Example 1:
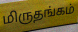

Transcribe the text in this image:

மிருதங்கம்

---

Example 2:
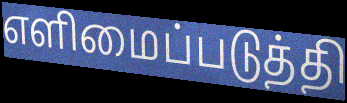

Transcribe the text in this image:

எளிமைப்படுத்தி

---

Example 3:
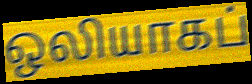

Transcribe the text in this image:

ஒலியாகப்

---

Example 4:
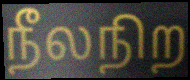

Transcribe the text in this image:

நீலநிற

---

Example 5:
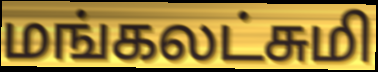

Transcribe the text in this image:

மங்கலட்சுமி